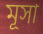
মূসা